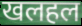
खलहल